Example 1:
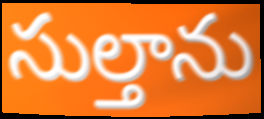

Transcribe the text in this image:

సుల్తాను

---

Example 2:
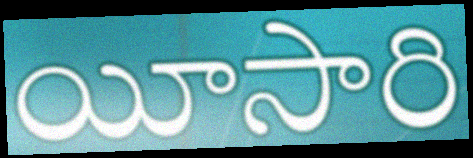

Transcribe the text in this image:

యీసారి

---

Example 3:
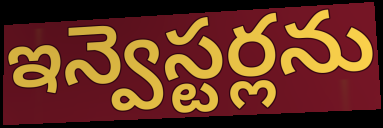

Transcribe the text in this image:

ఇన్వెస్టర్లను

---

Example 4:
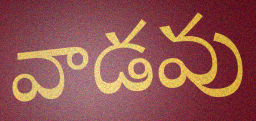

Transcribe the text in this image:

వాడవు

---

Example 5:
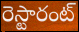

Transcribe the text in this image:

రెస్టారంట్